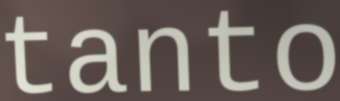
tanto